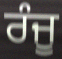
ਰੰਜੂ